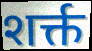
शर्क्त